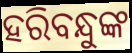
ହରିବନ୍ଧୁଙ୍କ